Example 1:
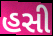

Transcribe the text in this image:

હસી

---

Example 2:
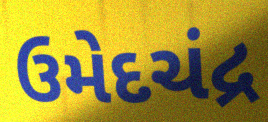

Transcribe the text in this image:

ઉમેદચંદ્ર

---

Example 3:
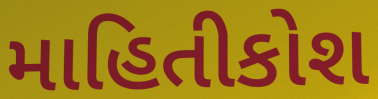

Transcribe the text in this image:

માહિતીકોશ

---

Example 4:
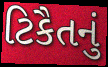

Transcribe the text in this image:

ટિકૈતનું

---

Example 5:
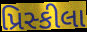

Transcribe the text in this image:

પ્રિસ્કીલા